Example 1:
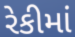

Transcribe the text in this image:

રેકીમાં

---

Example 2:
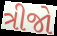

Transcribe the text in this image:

ત્રીજો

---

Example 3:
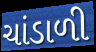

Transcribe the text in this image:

ચાંડાળી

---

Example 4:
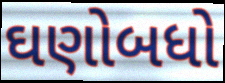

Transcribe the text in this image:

ઘણોબધો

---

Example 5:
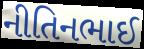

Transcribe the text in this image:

નીતિનભાઈ